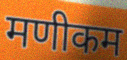
मणीकम